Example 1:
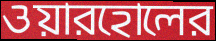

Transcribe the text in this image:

ওয়ারহোলের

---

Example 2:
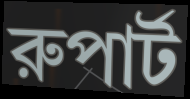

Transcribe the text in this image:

রুপার্ট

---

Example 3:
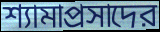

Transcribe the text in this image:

শ্যামাপ্রসাদের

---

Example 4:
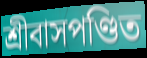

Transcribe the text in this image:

শ্রীবাসপণ্ডিত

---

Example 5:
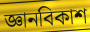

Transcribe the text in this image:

জ্ঞানবিকাশ